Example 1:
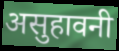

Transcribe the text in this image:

असुहावनी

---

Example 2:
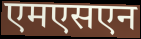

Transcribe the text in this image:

एमएसएन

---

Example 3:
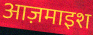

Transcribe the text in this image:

आज़माइश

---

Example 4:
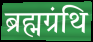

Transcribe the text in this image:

ब्रह्मग्रंथि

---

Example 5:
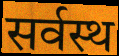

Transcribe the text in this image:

सर्वस्थ